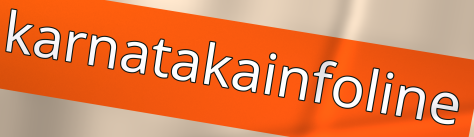
karnatakainfoline